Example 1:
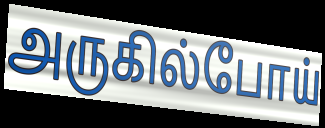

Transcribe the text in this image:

அருகில்போய்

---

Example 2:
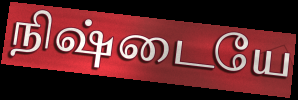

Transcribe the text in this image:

நிஷ்டையே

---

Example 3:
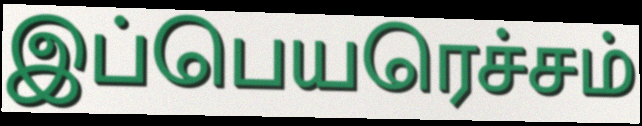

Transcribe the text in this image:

இப்பெயரெச்சம்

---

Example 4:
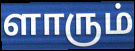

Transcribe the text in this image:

ளாரும்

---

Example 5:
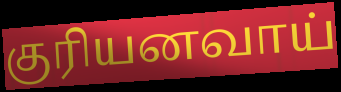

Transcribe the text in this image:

குரியனவாய்